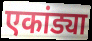
एकांड्या